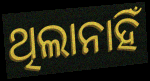
ଥିଲାନାହିଁ